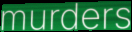
murders